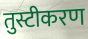
तुस्टीकरण